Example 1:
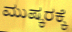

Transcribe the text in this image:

ಮುಷ್ಕರಕ್ಕೆ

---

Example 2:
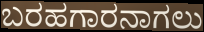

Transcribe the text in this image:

ಬರಹಗಾರನಾಗಲು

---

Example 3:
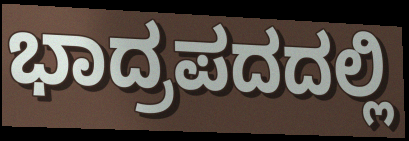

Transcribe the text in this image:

ಭಾದ್ರಪದದಲ್ಲಿ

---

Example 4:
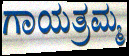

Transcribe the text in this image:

ಗಾಯತ್ರಮ್ಮ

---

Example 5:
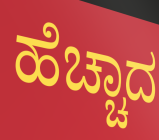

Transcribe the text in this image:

ಹೆಚ್ಚಾದ